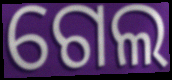
ଗେଲ